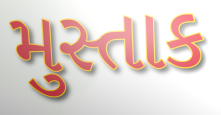
મુસ્તાક